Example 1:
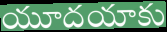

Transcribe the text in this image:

యూదయాకు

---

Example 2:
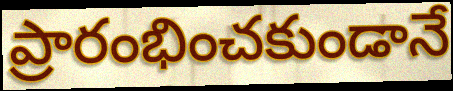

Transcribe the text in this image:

ప్రారంభించకుండానే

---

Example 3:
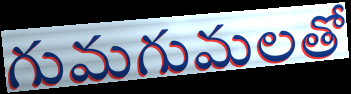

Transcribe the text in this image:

గుమగుమలతో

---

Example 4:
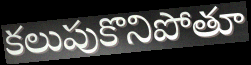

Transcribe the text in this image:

కలుపుకొనిపోతూ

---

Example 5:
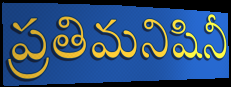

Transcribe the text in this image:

ప్రతిమనిషినీ